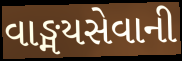
વાઙ્મયસેવાની